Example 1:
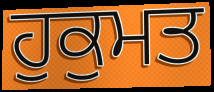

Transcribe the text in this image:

ਹੁਕੁਮਤ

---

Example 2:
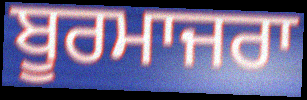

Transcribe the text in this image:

ਬੂਰਮਾਜਰਾ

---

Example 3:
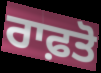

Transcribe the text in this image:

ਰਾਫ਼ਤੋ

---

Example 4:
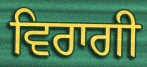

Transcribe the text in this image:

ਵਿਰਾਗੀ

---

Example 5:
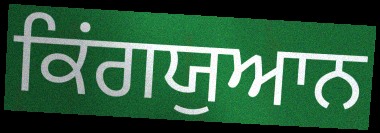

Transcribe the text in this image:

ਕਿਂਗਯੁਆਨ